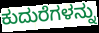
ಕುದುರೆಗಳನ್ನು